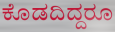
ಕೊಡದಿದ್ದರೂ